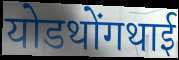
योडथोंगथाई